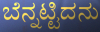
ಬೆನ್ನಟ್ಟಿದನು